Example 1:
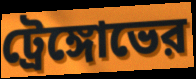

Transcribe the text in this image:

ট্রেঙ্গোভের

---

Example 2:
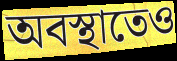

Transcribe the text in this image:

অবস্থাতেও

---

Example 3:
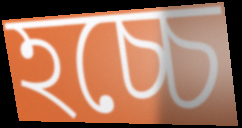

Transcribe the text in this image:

হচ্চে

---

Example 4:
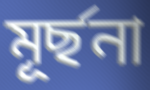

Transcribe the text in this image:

মূর্ছনা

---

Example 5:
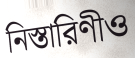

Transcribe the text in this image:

নিস্তারিণীও